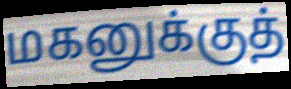
மகனுக்குத்